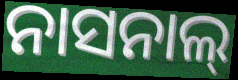
ନାସନାଲ୍